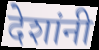
देशांनी